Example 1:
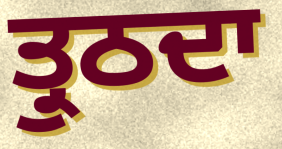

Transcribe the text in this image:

ਤ੍ਰੁਠਦਾ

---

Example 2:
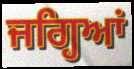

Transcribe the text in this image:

ਜਗ੍ਹਿਆਂ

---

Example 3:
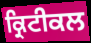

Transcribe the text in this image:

ਕ੍ਰਿਟੀਕਲ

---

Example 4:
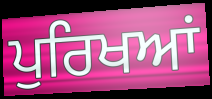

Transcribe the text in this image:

ਪੁਰਿਖਆਂ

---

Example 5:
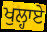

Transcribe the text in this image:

ਖੁਲ੍ਹਾਏ